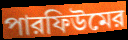
পারফিউমের